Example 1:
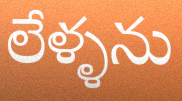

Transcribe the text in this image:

లేళ్ళను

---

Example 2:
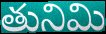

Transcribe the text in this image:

తునిమి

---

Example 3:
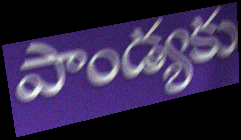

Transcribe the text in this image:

పాండ్యకు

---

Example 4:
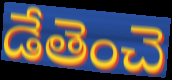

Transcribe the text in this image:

డేతెంచె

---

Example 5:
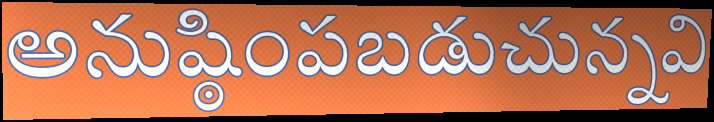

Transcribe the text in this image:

అనుష్ఠింపబడుచున్నవి